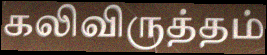
கலிவிருத்தம்